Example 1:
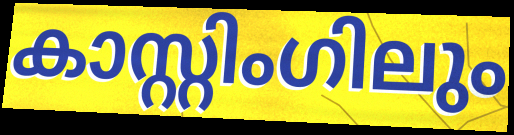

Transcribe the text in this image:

കാസ്റ്റിംഗിലും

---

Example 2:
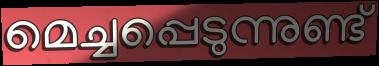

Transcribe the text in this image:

മെച്ചപ്പെടുന്നുണ്ട്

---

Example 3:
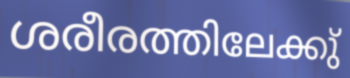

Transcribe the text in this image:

ശരീരത്തിലേക്കു്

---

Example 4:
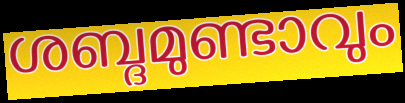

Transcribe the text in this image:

ശബ്ദമുണ്ടാവും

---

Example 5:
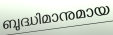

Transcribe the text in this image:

ബുദ്ധിമാനുമായ